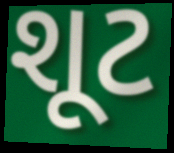
શૂટ